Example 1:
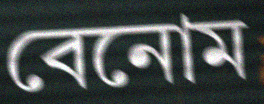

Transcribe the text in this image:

বেনোম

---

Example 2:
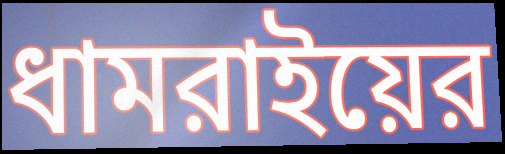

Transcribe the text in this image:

ধামরাইয়ের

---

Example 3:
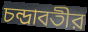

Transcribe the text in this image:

চন্দ্রাবতীর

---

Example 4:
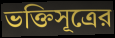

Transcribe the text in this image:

ভক্তিসূত্রের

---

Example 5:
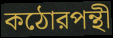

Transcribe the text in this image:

কঠোরপন্থী